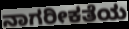
ನಾಗರೀಕತೆಯ